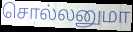
சொல்லனுமா